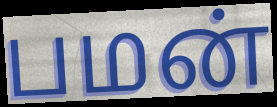
பமன்